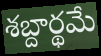
శబ్దార్థమే